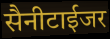
सैनीटाईजर